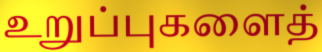
உறுப்புகளைத்